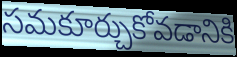
సమకూర్చుకోవడానికి